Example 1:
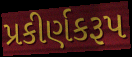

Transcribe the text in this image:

પ્રકીર્ણકરૂપ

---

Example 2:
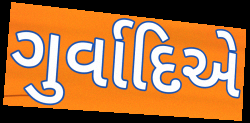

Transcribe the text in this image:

ગુર્વાદિએ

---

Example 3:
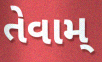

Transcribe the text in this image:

તેવામ્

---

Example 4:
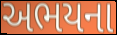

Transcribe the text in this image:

અભયના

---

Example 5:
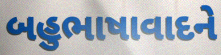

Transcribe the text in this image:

બહુભાષાવાદને